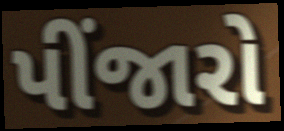
પીંજારો